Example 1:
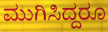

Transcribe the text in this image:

ಮುಗಿಸಿದ್ದರೂ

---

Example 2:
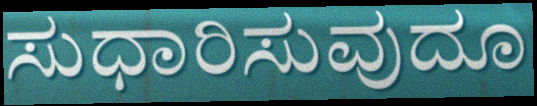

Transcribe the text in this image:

ಸುಧಾರಿಸುವುದೂ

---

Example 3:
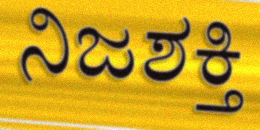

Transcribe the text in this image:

ನಿಜಶಕ್ತಿ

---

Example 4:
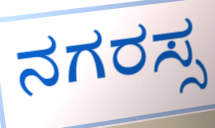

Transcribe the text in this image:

ನಗರಸ್ಸ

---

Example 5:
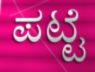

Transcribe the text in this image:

ಪಟ್ಟೆ